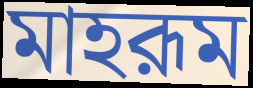
মাহরূম